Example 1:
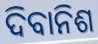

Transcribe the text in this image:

ଦିବାନିଶ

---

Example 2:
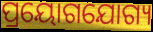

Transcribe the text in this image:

ପ୍ରୟୋଗଯୋଗ୍ୟ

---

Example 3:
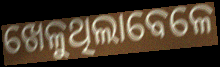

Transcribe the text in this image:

ଖେଳୁଥିଲାବେଳେ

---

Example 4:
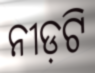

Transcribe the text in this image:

ନୀଡ଼ଟି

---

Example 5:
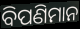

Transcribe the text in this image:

ବିପଣିମାନ